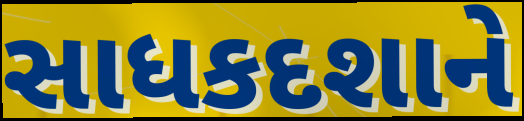
સાધકદશાને